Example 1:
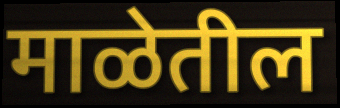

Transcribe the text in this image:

माळेतील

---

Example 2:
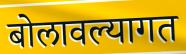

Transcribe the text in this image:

बोलावल्यागत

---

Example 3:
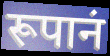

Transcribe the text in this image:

रूपानं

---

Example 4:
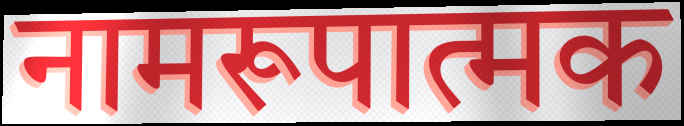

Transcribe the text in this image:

नामरूपात्मक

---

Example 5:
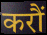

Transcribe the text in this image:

करौं